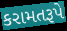
કરામતરૂપે